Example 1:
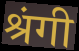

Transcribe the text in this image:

श्रंगी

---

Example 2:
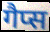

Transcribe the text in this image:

गैप्स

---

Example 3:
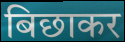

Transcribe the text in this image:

बिछाकर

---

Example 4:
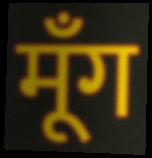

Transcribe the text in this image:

मूँग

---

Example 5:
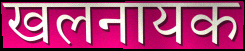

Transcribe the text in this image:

खलनायक